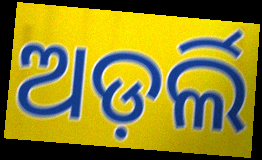
ଅଡ଼ର୍ଲି